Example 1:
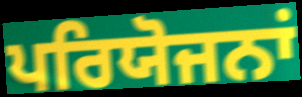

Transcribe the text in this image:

ਪਰਿਯੋਜਨਾਂ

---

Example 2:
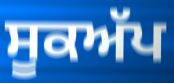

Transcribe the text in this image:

ਸੂਕਅੱਪ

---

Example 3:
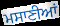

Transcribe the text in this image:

ਮਸਾਣੀਆਂ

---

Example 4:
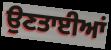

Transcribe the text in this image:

ਉਣਤਾਈਆਂ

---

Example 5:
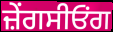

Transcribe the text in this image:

ਜ਼ੇਂਗਸੀਓਂਗ